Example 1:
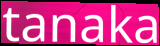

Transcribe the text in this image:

tanaka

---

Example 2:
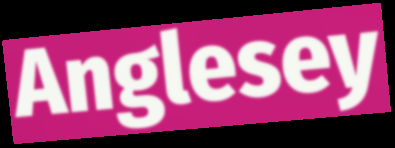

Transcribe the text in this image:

Anglesey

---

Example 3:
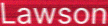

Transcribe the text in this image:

Lawson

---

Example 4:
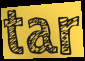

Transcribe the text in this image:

tar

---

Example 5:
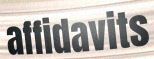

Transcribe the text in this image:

affidavits